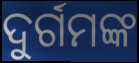
ଦୁର୍ଗମଙ୍କ